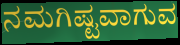
ನಮಗಿಷ್ಟವಾಗುವ